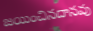
జయించినదానవు